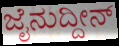
ಜೈನುದ್ದೀನ್